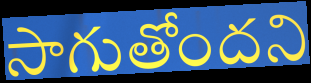
సాగుతోందని